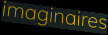
imaginaires